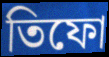
তিফো